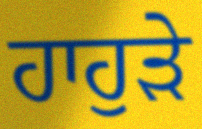
ਹਾਹੁੜੇ